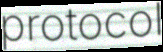
protocol